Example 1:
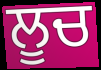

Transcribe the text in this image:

ਲੂਚ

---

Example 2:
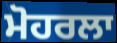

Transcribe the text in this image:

ਮੋਹਰਲਾ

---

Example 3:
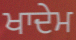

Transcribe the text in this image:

ਖਾਦੇਮ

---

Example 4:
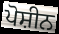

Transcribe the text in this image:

ਪੋਸ਼ੀਨ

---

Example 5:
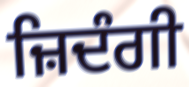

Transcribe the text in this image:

ਜ਼ਿਦੰਗੀ